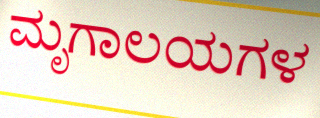
ಮೃಗಾಲಯಗಳ